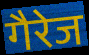
गैरेज